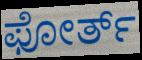
ಫೋರ್ತ್